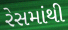
રેસમાંથી